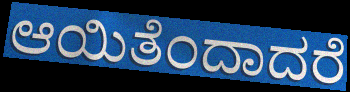
ಆಯಿತೆಂದಾದರೆ